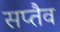
सप्तैव